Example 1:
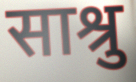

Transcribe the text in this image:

साश्रु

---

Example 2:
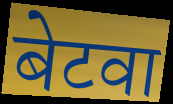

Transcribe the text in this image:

बेटवा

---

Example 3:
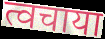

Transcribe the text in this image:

त्वचाया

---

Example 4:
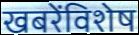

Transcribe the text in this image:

खबरेंविशेष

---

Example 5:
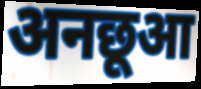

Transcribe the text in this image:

अनछूआ